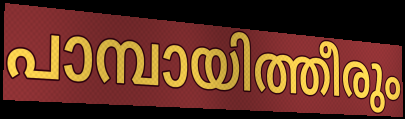
പാമ്പായിത്തീരും